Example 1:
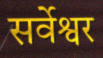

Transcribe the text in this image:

सर्वेश्वर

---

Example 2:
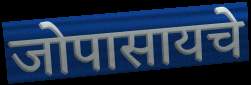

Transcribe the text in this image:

जोपासायचे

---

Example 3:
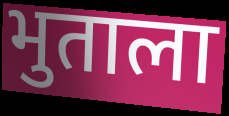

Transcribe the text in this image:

भुताला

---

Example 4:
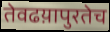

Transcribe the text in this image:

तेवढय़ापुरतेच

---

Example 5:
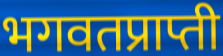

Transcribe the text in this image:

भगवतप्राप्ती